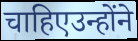
चाहिएउन्होंने